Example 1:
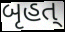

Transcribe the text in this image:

બૃહત્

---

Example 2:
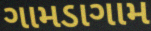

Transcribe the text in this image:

ગામડાગામ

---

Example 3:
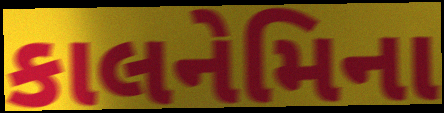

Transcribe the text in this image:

કાલનેમિના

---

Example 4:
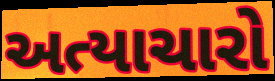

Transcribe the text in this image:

અત્યાચારો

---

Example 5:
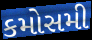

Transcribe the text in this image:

કમોસમી